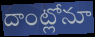
దాంట్లోనూ